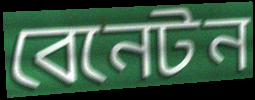
বেনেটন